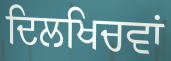
ਦਿਲਖਿਚਵਾਂ